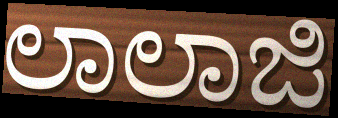
ಲಾಲಾಜಿ